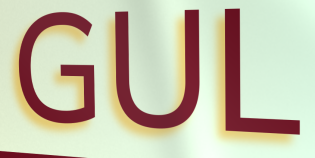
GUL